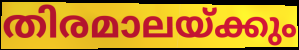
തിരമാലയ്ക്കും